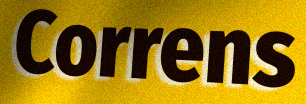
Correns